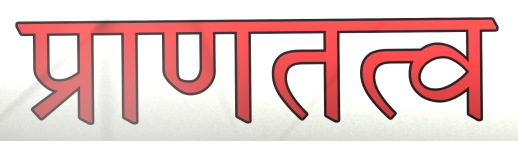
प्राणतत्व